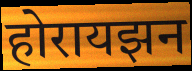
होरायझन